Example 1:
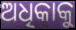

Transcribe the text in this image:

ଅଧିକାକୁ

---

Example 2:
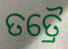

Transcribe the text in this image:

ତତ୍ରୈ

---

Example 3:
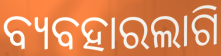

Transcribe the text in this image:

ବ୍ୟବହାରଲାଗି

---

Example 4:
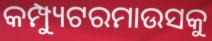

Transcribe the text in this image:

କମ୍ପ୍ୟୁଟରମାଉସକୁ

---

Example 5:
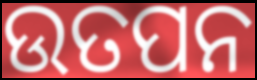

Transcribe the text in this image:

ଉତପନ